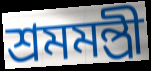
শ্রমমন্ত্রী